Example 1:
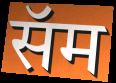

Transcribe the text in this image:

सॅम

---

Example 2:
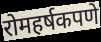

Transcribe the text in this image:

रोमहर्षकपणे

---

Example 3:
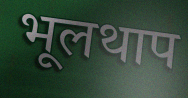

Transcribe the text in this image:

भूलथाप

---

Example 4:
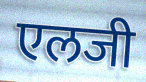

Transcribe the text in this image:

एलजी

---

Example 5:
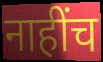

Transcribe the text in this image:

नाहींच